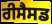
ਰੀਸੈਸਡ